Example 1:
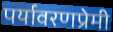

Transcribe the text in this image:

पर्यावरणप्रेमी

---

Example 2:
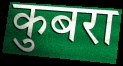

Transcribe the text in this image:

कुबरा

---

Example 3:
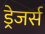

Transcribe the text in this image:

ड्रेजर्स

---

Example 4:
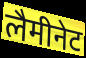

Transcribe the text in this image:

लैमीनेट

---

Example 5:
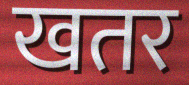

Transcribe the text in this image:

खतर